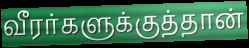
வீரர்களுக்குத்தான்